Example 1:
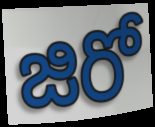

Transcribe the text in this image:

జిరో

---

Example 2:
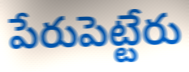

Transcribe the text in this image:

పేరుపెట్టేరు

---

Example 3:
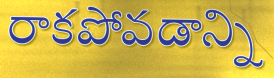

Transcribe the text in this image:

రాకపోవడాన్ని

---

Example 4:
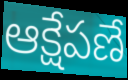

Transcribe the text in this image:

ఆక్షేపణే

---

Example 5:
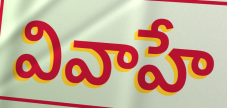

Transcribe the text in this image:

వివాహే